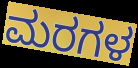
ಮರಗಳ